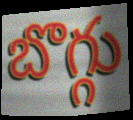
బొగ్గు